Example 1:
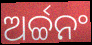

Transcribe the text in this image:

ଅର୍ଚ୍ଚନଂ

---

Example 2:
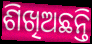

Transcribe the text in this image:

ଶିଖିଅଛନ୍ତି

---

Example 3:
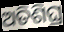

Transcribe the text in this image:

ଅତିଶିଘ୍ର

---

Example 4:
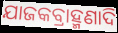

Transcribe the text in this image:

ଯାଜକବ୍ରାହ୍ମଣାଦି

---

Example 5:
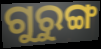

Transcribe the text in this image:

ଗୁରୁଙ୍ଗ